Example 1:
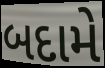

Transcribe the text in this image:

બદામે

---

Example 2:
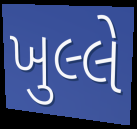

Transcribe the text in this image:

ખુલ્લે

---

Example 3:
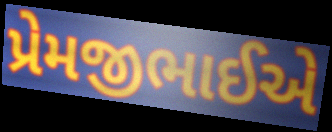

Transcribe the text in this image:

પ્રેમજીભાઈએ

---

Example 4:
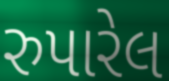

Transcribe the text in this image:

રુપારેલ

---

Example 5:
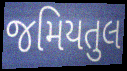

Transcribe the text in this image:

જમિયતુલ